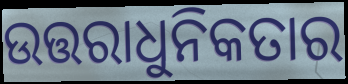
ଉତ୍ତରାଧୁନିକତାର